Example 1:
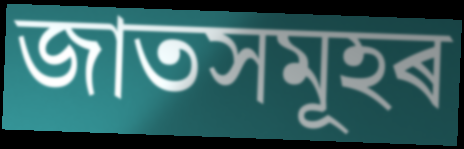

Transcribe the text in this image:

জাতসমূহৰ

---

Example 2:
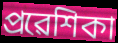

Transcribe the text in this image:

প্ৰৱেশিকা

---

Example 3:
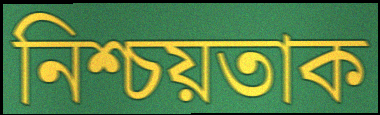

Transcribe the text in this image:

নিশ্চয়তাক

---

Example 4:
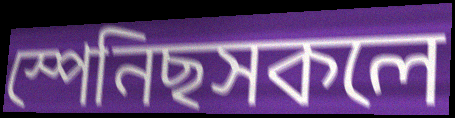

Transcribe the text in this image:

স্পেনিছসকলে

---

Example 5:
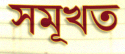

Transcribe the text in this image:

সমূখত